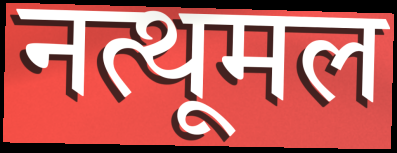
नत्थूमल